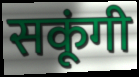
सकूंगी